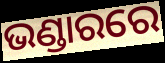
ଭଣ୍ଡାରରେ